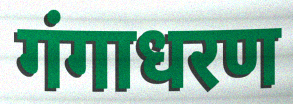
गंगाधरण